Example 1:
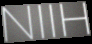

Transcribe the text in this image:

NIIH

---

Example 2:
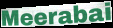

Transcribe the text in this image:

Meerabai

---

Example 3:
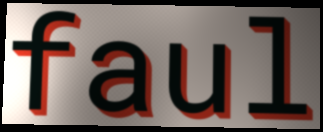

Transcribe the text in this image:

faul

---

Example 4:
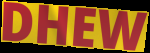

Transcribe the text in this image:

DHEW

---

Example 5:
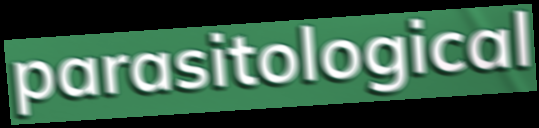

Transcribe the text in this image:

parasitological